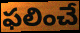
ఫలించే